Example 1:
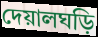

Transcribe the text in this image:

দেয়ালঘড়ি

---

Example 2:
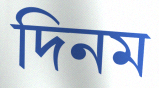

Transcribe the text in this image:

দিনম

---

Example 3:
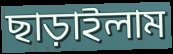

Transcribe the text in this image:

ছাড়াইলাম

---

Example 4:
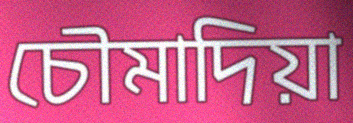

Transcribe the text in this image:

চৌমাদিয়া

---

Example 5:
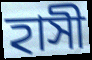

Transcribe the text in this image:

হাসী